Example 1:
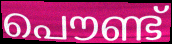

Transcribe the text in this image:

പൌണ്ട്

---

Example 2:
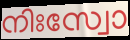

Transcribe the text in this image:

നിഃസ്വോ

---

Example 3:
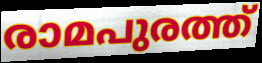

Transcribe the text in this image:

രാമപുരത്ത്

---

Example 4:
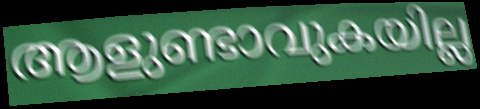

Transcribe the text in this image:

ആളുണ്ടാവുകയില്ല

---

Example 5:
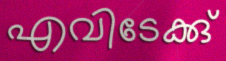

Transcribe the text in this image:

എവിടേക്കു്